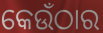
କେଉଁଠାର